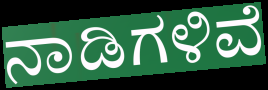
ನಾಡಿಗಳಿವೆ